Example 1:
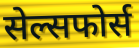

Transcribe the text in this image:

सेल्सफोर्स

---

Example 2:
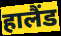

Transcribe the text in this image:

हालैंड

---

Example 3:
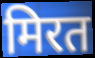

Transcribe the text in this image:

मिरत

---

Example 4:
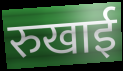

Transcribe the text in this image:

रुखाई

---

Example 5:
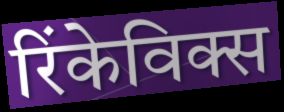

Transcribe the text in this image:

रिंकेविक्स